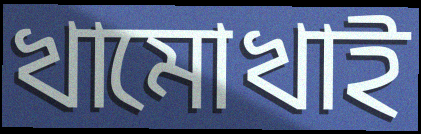
খামোখাই